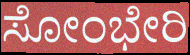
ಸೋಂಭೇರಿ